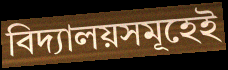
বিদ্যালয়সমূহেই